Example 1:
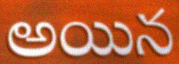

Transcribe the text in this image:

అయిన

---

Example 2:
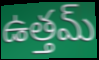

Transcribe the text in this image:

ఉత్తమ్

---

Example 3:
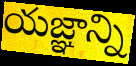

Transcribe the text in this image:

యజ్ఞాన్ని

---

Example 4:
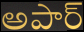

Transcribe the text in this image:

అపార్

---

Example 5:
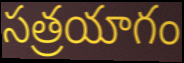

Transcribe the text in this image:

సత్రయాగం